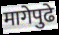
मागेपुढे